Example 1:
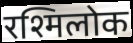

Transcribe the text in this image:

रश्मिलोक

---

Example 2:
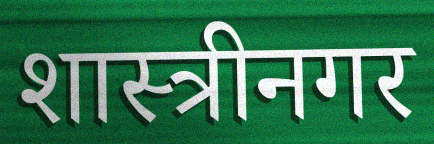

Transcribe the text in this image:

शास्त्रीनगर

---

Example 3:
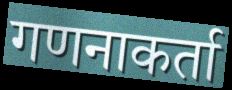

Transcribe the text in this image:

गणनाकर्ता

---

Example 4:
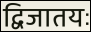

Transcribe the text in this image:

द्विजातयः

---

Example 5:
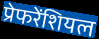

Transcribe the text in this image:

प्रेफरेंशियल